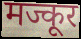
मज्कूर